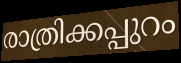
രാത്രിക്കപ്പുറം